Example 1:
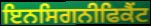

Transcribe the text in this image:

ਇਨਸਿਗਨੀਫਿਕੈਂਟ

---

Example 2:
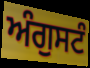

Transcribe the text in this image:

ਅੰਗੁਸਟੰ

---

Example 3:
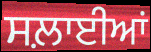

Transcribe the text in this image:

ਸਲ਼ਾਈਆਂ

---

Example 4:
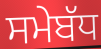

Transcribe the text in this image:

ਸਮੇਬੱਧ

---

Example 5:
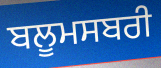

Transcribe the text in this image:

ਬਲੂਮਸਬਰੀ